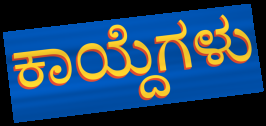
ಕಾಯ್ದೆಗಳು